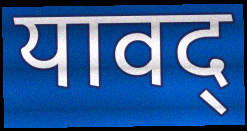
यावद्